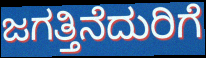
ಜಗತ್ತಿನೆದುರಿಗೆ